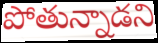
పోతున్నాడని